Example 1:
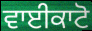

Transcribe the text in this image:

ਵਾਈਕਾਟੋ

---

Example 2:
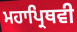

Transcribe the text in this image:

ਮਹਾਪ੍ਰਿਥਵੀ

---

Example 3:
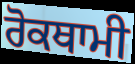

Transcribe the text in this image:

ਰੋਕਥਾਮੀ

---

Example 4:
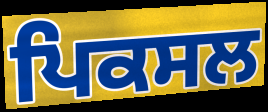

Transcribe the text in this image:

ਪਿਕਸਲ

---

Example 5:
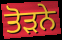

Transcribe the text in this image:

ਤੋੜਨੇ